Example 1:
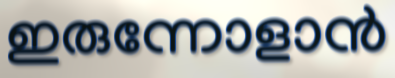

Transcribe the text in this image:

ഇരുന്നോളാൻ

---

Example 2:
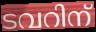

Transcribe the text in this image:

ടവറിന്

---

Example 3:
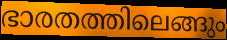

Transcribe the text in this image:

ഭാരതത്തിലെങ്ങും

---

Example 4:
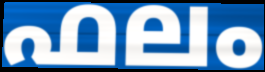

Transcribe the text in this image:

ഫലം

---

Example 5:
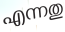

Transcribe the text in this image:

എന്നതു